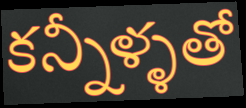
కన్నీళ్ళతో